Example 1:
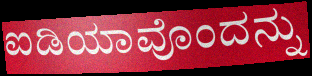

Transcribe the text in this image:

ಐಡಿಯಾವೊಂದನ್ನು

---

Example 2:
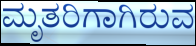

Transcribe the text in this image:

ಮೃತರಿಗಾಗಿರುವ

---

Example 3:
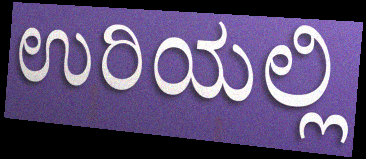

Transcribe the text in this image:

ಉರಿಯಲ್ಲಿ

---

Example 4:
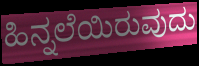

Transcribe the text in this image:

ಹಿನ್ನಲೆಯಿರುವುದು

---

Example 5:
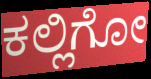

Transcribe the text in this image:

ಕಲ್ಲಿಗೋ